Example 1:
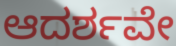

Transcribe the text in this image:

ಆದರ್ಶವೇ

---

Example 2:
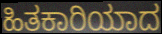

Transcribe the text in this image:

ಹಿತಕಾರಿಯಾದ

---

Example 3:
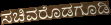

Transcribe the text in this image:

ಸಚಿವರೊಡಗೂಡಿ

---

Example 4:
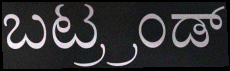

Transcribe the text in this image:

ಬಟ್ರ್ರಂಡ್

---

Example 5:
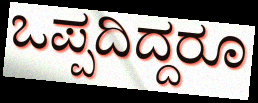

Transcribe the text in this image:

ಒಪ್ಪದಿದ್ದರೂ